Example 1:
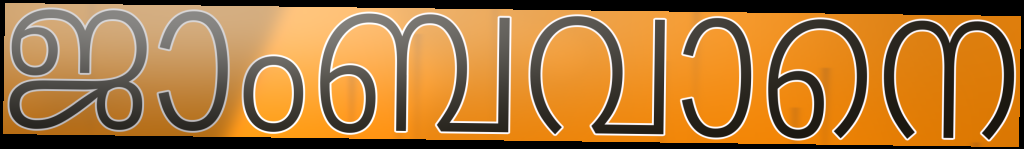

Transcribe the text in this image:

ജാംബവാനെ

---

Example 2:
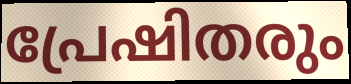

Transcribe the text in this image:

പ്രേഷിതരും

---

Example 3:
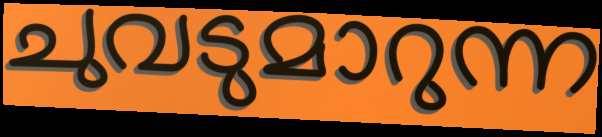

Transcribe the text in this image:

ചുവടുമാറുന്ന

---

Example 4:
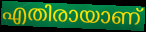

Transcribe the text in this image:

എതിരായാണ്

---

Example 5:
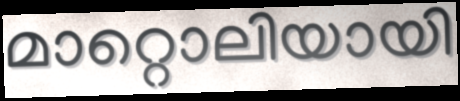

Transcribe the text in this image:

മാറ്റൊലിയായി